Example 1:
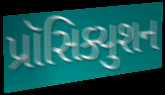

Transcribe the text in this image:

પ્રૉસિક્યુશન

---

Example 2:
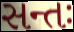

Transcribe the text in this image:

સન્તઃ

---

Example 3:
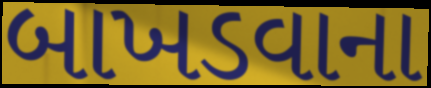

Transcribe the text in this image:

બાખડવાના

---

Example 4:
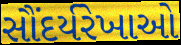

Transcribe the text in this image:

સૌંદર્યરેખાઓ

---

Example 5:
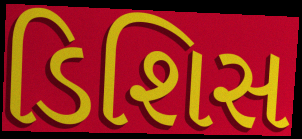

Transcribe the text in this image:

ડિશિસ